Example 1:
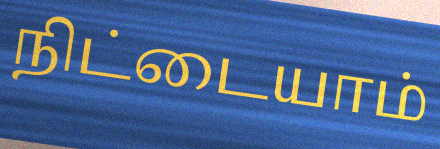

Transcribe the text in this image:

நிட்டையாம்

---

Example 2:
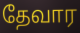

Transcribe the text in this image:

தேவார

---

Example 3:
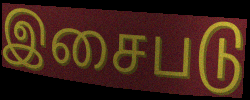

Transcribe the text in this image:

இசைபடு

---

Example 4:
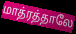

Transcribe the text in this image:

மாத்ரத்தாலே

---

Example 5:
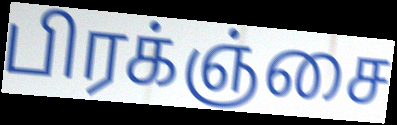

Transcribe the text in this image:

பிரக்ஞ்சை